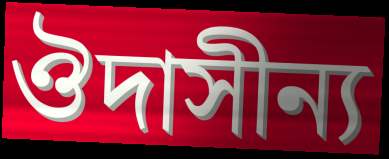
ঔদাসীন্য